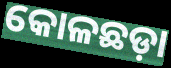
କୋଳଛଡ଼ା